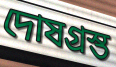
দোষগ্রস্ত